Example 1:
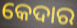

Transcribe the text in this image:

କେଦାର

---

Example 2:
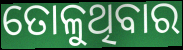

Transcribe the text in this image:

ତୋଳୁଥିବାର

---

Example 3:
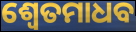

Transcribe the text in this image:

ଶ୍ୱେତମାଧବ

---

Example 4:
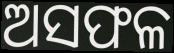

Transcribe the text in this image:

ଅସଫଳ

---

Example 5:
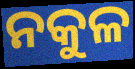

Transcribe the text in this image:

ନକୁଳ